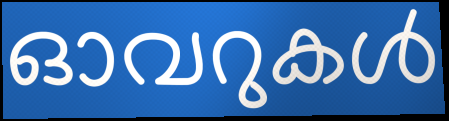
ഓവറുകൾ